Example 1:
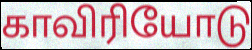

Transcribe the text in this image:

காவிரியோடு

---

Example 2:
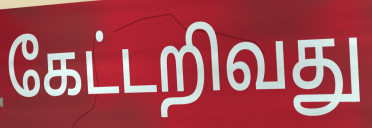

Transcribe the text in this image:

கேட்டறிவது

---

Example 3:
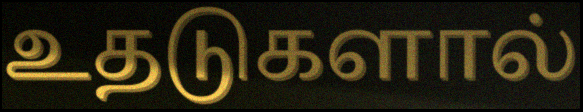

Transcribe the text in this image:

உதடுகளால்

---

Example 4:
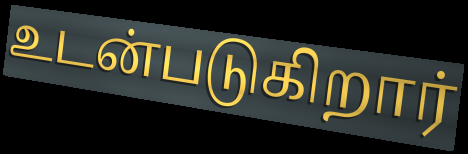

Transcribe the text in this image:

உடன்படுகிறார்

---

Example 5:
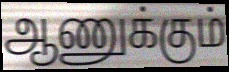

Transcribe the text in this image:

ஆணுக்கும்